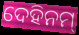
ଦେହିନମ୍